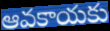
ఆవకాయకు